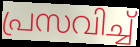
പ്രസവിച്ച്